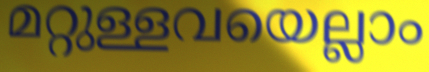
മറ്റുള്ളവയെല്ലാം